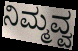
ನಿಮ್ಮವ್ವ